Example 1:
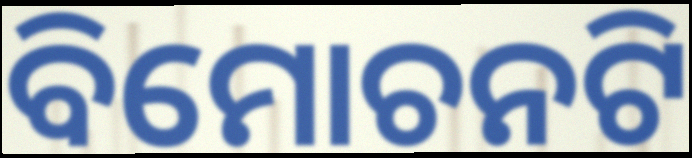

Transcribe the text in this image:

ବିମୋଚନଟି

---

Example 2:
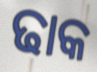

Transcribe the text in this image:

ଢାକ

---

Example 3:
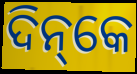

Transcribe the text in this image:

ଦିନ୍‌କେ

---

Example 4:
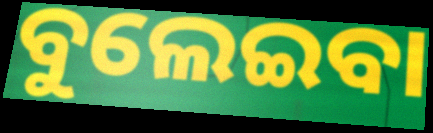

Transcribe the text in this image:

ବୁଲେଇବା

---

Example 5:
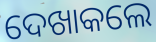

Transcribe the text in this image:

ଦେଖାକଲେ